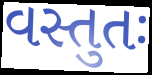
વસ્તુતઃ